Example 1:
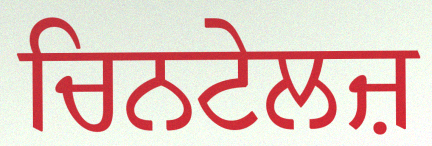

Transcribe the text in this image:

ਚਿਨਟੇਲਜ਼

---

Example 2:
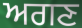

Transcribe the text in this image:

ਅਗਣ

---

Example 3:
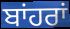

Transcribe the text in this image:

ਬਾਂਹਰਾਂ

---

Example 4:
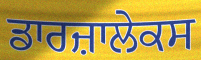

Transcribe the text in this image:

ਡਾਰਜ਼ਾਲੇਕਸ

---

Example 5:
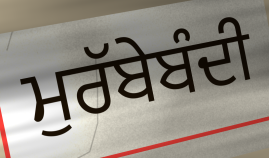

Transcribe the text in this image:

ਮੁਰੱਬੇਬੰਦੀ